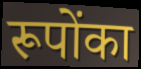
रूपोंका